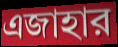
এজাহার